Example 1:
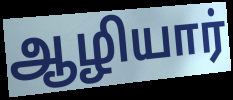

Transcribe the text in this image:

ஆழியார்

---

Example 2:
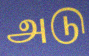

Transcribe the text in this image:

அடு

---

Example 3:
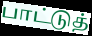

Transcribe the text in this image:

பாட்டுத்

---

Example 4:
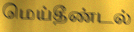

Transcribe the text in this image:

மெய்தீண்டல்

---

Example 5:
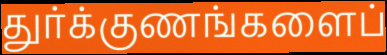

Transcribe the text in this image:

துர்க்குணங்களைப்